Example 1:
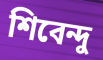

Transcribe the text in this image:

শিবেন্দু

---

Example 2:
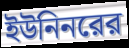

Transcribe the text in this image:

ইউনিনরের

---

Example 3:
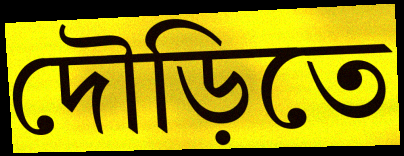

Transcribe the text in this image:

দৌড়িতে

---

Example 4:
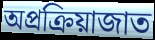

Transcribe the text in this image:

অপ্রক্রিয়াজাত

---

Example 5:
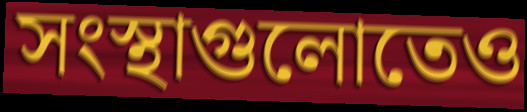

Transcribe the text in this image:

সংস্থাগুলোতেও